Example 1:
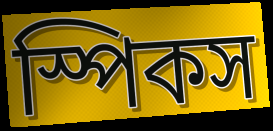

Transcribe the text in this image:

স্পিকস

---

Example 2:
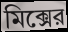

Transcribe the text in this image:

মিক্সের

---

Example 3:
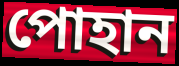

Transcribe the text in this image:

পোহান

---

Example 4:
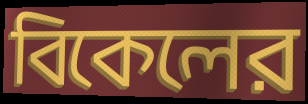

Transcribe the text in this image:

বিকেলের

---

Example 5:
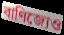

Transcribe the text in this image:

বাণিজ্যেও